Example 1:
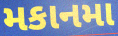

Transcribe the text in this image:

મકાનમા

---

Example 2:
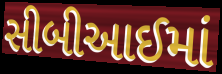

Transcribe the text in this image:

સીબીઆઈમાં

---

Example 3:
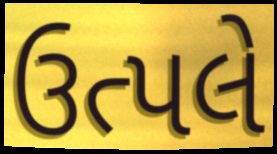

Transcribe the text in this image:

ઉત્પલે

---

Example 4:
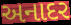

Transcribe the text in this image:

અનાદર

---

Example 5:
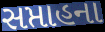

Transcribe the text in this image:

સપ્તાહના